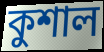
কুশাল